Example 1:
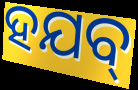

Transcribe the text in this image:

ହଯବ୍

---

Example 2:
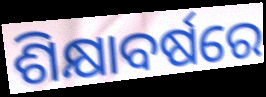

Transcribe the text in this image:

ଶିକ୍ଷାବର୍ଷରେ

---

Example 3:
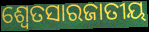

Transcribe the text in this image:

ଶ୍ଵେତସାରଜାତୀୟ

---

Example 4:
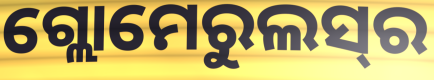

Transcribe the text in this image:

ଗ୍ଲୋମେରୁଲସ୍‌ର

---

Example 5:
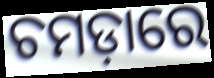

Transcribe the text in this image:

ଚମଡ଼ାରେ